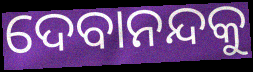
ଦେବାନନ୍ଦକୁ